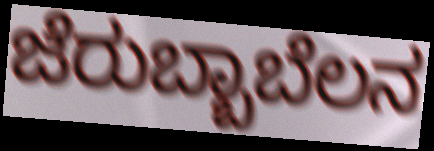
ಜೆರುಬ್ಬಾಬೆಲನ